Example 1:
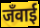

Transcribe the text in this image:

जँवाई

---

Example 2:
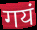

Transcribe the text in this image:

गयं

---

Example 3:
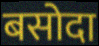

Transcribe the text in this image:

बसोदा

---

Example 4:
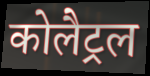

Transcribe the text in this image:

कोलैट्रल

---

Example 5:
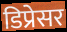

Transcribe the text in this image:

डिप्रेसर